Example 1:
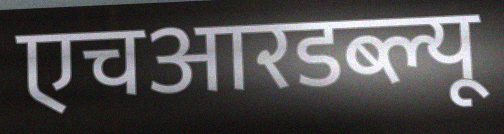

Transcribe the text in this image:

एचआरडब्ल्यू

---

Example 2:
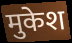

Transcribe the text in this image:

मुकेश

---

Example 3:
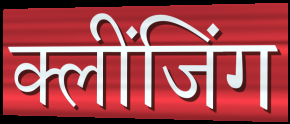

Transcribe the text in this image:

क्लींजिंग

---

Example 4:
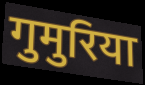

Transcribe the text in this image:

गुमुरिया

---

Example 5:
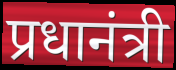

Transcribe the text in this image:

प्रधानंत्री